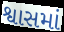
શ્વાસમાં